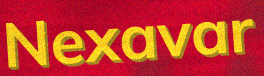
Nexavar